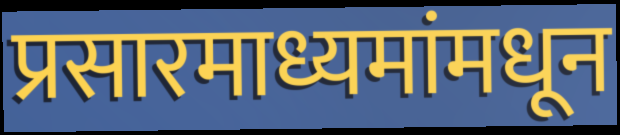
प्रसारमाध्यमांमधून